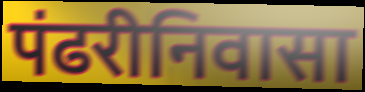
पंढरीनिवासा